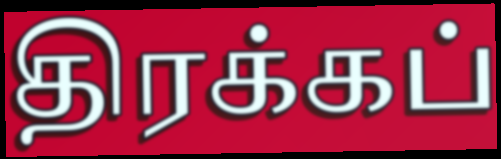
திரக்கப்